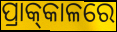
ପ୍ରାକ୍‍କାଳରେ